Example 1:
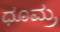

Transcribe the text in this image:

ಧೂಮ್ರ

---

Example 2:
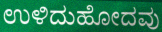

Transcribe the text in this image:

ಉಳಿದುಹೋದವು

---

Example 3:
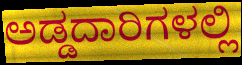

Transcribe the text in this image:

ಅಡ್ಡದಾರಿಗಳಲ್ಲಿ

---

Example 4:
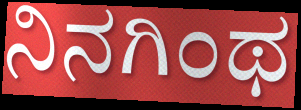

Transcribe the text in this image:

ನಿನಗಿಂಥ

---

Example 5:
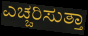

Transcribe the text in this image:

ಎಚ್ಚರಿಸುತ್ತಾ